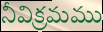
నీవిక్రమము